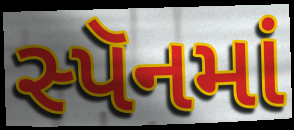
સ્પૅનમાં